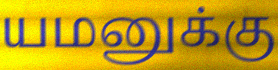
யமனுக்கு